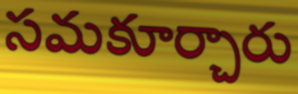
సమకూర్చారు